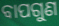
ବାପଗୁଣ